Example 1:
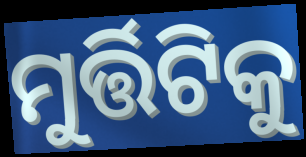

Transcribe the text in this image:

ମୁର୍ତ୍ତିଟିକୁ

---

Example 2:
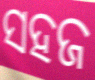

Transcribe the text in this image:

ସହଜ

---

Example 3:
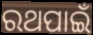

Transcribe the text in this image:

ରଥପାଇଁ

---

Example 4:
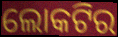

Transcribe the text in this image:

ଲୋକଟିର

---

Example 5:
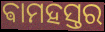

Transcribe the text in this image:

ଵାମହସ୍ତର